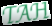
TAH